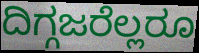
ದಿಗ್ಗಜರೆಲ್ಲರೂ